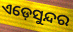
ଏଡ଼େସୁନ୍ଦର